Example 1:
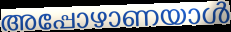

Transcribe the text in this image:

അപ്പോഴാണയാൾ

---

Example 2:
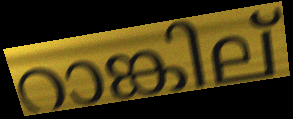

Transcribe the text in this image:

റാങ്കില്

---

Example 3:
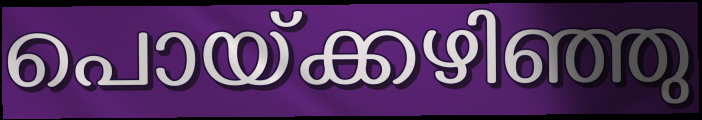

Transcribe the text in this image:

പൊയ്‌ക്കഴിഞ്ഞു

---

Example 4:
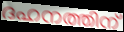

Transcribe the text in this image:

ദഹനത്തിന്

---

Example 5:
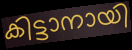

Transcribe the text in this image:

കിട്ടാനായി